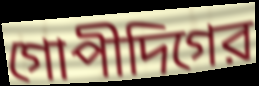
গোপীদিগের